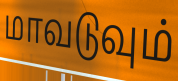
மாவடுவும்